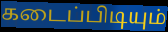
கடைப்பிடியும்